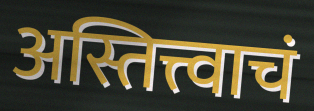
अस्तित्त्वाचं